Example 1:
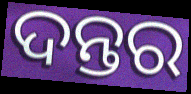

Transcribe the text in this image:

ଦନ୍ତର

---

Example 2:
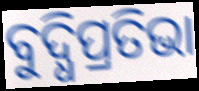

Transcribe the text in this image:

ବୁଦ୍ଧିପ୍ରତିଭା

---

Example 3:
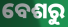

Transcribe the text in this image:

ବେଶରୁ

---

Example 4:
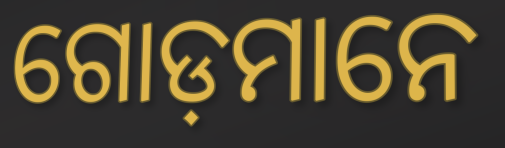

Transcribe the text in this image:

ଗୋଡ଼ମାନେ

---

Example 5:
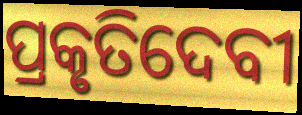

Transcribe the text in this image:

ପ୍ରକୃତିଦେବୀ